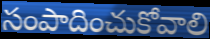
సంపాదించుకోవాలి